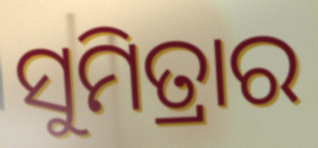
ସୁମିତ୍ରାର